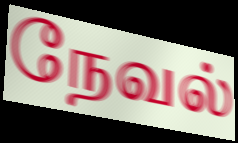
நேவல்